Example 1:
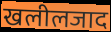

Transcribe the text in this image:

खलीलजाद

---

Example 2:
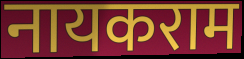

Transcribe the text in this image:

नायकराम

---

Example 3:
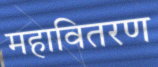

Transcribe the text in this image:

महावितरण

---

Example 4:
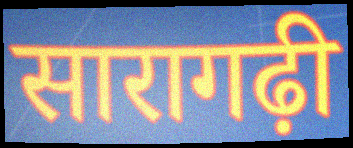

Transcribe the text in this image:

सारागढ़ी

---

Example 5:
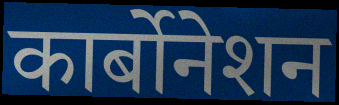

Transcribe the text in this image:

कार्बोनेशन